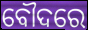
ବୌଦରେ